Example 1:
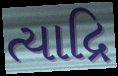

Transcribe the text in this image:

ત્યાદ્રિ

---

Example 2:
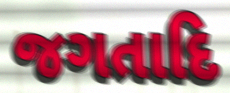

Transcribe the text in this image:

જગતાદિ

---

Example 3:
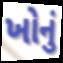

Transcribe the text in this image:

ખોનું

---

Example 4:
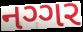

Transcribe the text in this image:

નગ્ગર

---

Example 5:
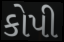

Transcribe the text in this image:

કોપી